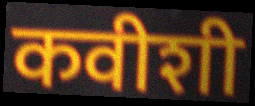
कवीशी